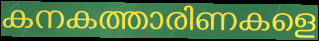
കനകത്താരിണകളെ